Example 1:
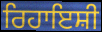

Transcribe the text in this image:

ਰਿਹਾਇਸ਼ੀ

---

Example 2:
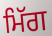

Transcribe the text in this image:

ਮਿੱਗ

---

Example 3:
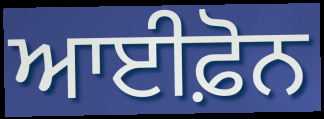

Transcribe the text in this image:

ਆਈਫ਼ੋਨ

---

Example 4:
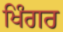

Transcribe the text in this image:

ਖਿੰਗਰ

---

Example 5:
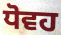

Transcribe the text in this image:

ਧੋਵਹ